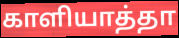
காளியாத்தா